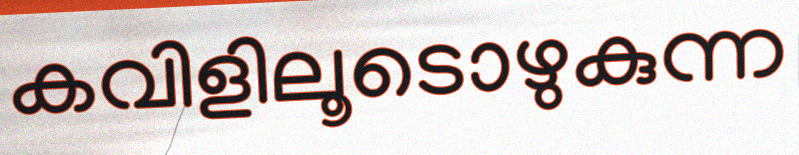
കവിളിലൂടൊഴുകുന്ന